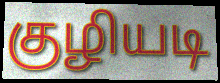
குழியடி